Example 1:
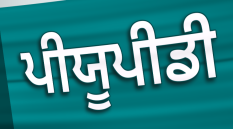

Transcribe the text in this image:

ਪੀਯੂਪੀਡੀ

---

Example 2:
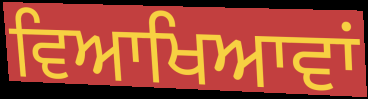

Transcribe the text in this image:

ਵਿਆਖਿਆਵਾਂ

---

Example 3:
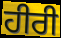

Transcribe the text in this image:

ਹੀਰੀ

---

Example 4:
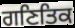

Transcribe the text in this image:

ਗਣਿਤਿਕ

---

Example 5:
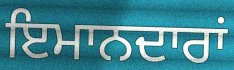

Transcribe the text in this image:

ਇਮਾਨਦਾਰਾਂ